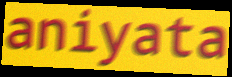
aniyata